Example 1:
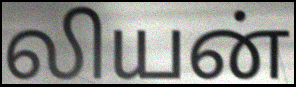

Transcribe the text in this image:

லியன்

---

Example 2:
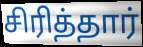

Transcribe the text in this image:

சிரித்தார்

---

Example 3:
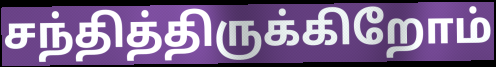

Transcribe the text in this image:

சந்தித்திருக்கிறோம்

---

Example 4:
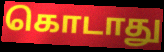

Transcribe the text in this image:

கொடாது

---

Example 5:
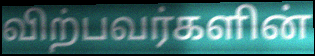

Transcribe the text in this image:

விற்பவர்களின்